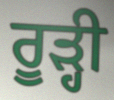
ਰੂੜ੍ਹੀ